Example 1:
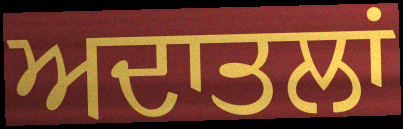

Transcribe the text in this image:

ਅਦਾਤਲਾਂ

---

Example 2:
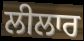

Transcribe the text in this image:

ਲੀਲਾਰ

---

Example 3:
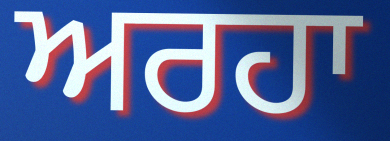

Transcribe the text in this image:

ਅਰਹਾ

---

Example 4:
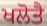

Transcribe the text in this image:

ਖਲੋਤੈ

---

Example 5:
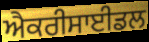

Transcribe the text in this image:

ਐਕਰੀਸਾਈਡਲ